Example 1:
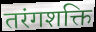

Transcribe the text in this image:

तरंगशक्ति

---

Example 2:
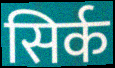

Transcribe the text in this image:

सिर्क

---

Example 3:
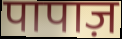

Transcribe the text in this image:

पापाज़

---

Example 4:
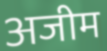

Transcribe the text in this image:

अजीम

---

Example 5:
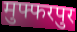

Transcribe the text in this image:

मुफ्फरपुर